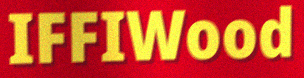
IFFIWood